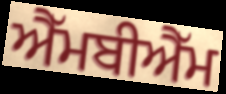
ਐੱਮਬੀਐੱਮ